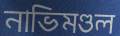
নাভিমণ্ডল